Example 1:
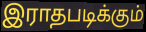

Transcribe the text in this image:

இராதபடிக்கும்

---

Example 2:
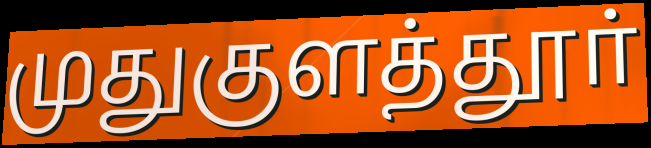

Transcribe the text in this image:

முதுகுளத்தூர்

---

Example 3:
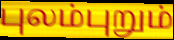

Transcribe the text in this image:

புலம்புறும்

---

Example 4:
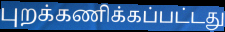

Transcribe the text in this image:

புறக்கணிக்கப்பட்டது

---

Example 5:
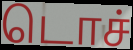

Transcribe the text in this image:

டொச்